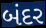
બંદર